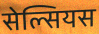
सेल्सियस